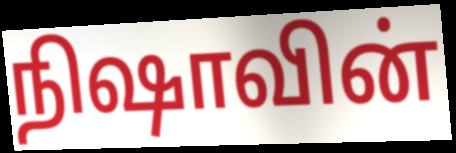
நிஷாவின்